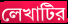
লেখাটির